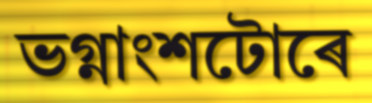
ভগ্নাংশটোৰে